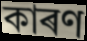
কাৰণ